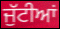
ਜੁੱਟੀਆਂ